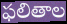
ఫలితాల